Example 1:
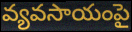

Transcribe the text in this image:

వ్యవసాయంపై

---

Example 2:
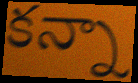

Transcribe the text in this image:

కన్నా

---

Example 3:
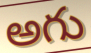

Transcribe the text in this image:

అగు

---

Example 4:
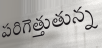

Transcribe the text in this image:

పరిగెత్తుతున్న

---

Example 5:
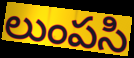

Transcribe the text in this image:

లుంపసి